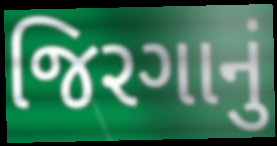
જિરગાનું